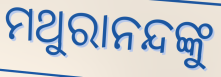
ମଥୁରାନନ୍ଦଙ୍କୁ